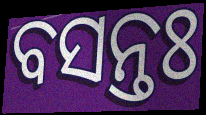
ବସନ୍ତଃ